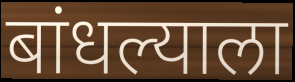
बांधल्याला